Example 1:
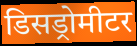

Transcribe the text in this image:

डिसड्रोमीटर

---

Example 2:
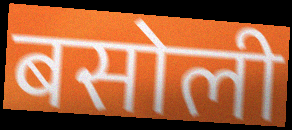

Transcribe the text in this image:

बसोली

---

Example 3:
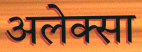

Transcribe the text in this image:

अलेक्‍सा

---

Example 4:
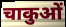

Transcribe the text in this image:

चाकुओं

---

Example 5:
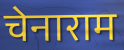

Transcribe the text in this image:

चेनाराम